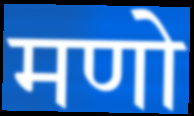
मणो